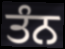
ਤੰਨ